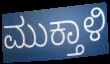
ಮುಕ್ತಾಳಿ